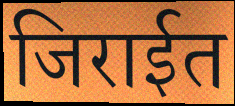
जिराईत